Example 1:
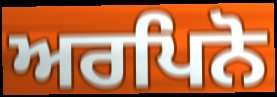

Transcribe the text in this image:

ਅਰਪਿਨੋ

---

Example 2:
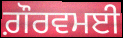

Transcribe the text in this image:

ਗ਼ੌਰਵਮਈ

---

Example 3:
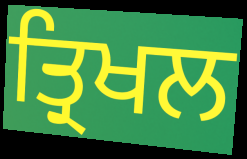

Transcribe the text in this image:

ਤ੍ਰਿਖਲ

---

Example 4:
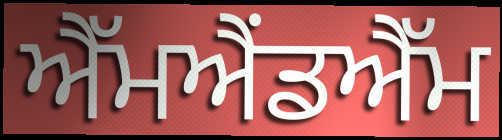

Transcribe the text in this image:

ਐੱਮਐਂਡਐੱਮ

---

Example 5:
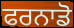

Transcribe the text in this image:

ਫਰਨਾਡੋ